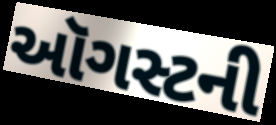
ઑગસ્ટની